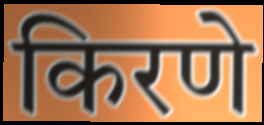
किरणे